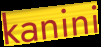
kanini